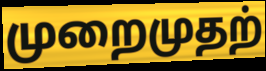
முறைமுதற்